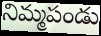
నిమ్మపండు